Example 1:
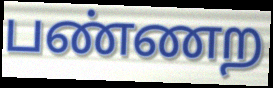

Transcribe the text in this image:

பண்ணற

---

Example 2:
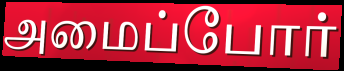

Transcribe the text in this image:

அமைப்போர்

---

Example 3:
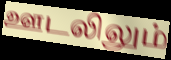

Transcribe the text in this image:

ஊடலிலும்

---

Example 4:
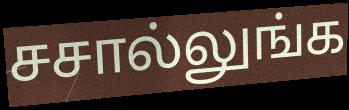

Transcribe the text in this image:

சசால்லுங்க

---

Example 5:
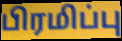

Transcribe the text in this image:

பிரமிப்பு